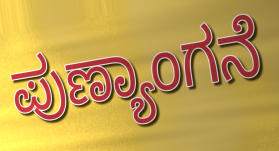
ಪುಣ್ಯಾಂಗನೆ